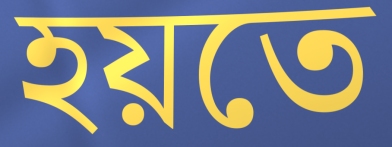
হয়তে